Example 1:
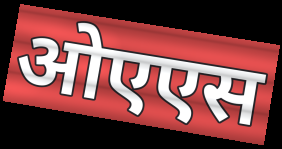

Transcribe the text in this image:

ओएएस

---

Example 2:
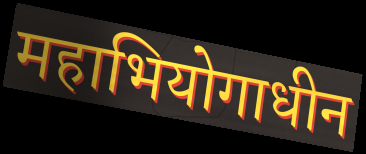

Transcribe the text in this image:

महाभियोगाधीन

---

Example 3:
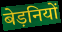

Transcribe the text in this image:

बेड़नियों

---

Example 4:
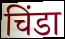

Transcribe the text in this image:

चिंडा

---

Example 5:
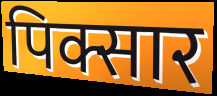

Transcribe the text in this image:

पिक्सार